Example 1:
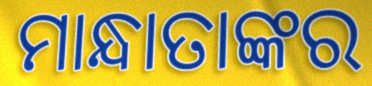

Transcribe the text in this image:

ମାନ୍ଧାତାଙ୍କର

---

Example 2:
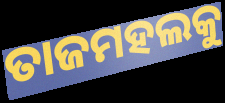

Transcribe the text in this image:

ତାଜମହଲକୁ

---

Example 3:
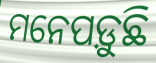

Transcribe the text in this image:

ମନେପଡ଼ୁଛି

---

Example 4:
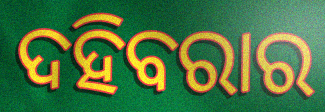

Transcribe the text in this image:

ଦହିବରାର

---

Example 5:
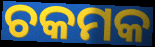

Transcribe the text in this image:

ଚକମକ